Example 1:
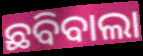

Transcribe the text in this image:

ଛବିବାଲା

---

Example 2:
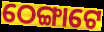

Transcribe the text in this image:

ଠେଙ୍ଗାଟେ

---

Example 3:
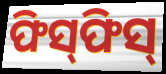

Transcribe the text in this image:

ଫିସ୍‍ଫିସ୍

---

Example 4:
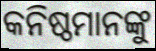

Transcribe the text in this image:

କନିଷ୍ଠମାନଙ୍କୁ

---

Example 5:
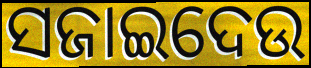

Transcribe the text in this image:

ସଜାଇଦେଉ